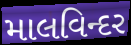
માલવિન્દર